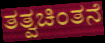
ತತ್ವಚಿಂತನೆ